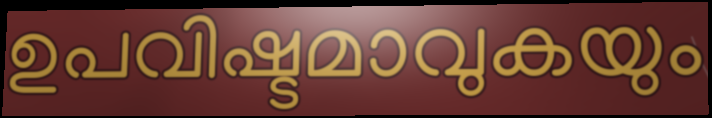
ഉപവിഷ്ടമാവുകയും